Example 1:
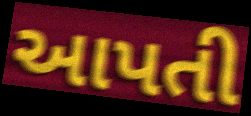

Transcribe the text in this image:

આપતી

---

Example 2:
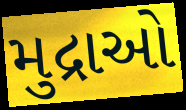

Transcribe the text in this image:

મુદ્રાઓ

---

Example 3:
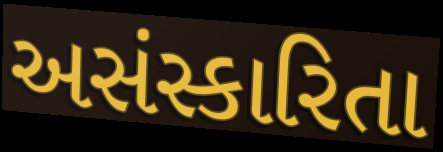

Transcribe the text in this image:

અસંસ્કારિતા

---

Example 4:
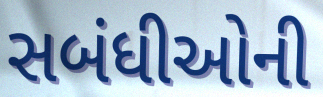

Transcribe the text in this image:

સબંધીઓની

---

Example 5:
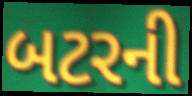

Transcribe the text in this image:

બટરની